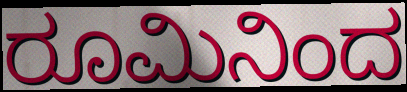
ರೂಮಿನಿಂದ